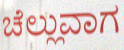
ಚೆಲ್ಲುವಾಗ